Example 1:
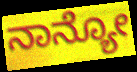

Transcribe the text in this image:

ನಾನ್ಯೋ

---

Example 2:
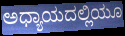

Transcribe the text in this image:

ಅಧ್ಯಾಯದಲ್ಲಿಯೂ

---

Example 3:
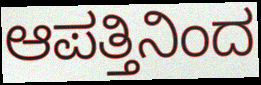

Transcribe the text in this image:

ಆಪತ್ತಿನಿಂದ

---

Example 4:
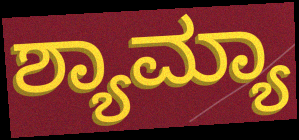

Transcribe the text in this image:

ಶ್ಯಾಮ್ಯಾ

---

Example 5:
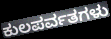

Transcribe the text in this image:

ಕುಲಪರ್ವತಗಳು